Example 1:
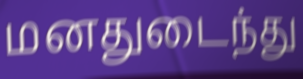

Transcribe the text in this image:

மனதுடைந்து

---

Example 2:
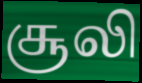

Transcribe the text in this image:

சூலி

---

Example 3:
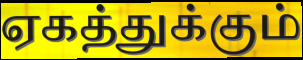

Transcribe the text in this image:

ஏகத்துக்கும்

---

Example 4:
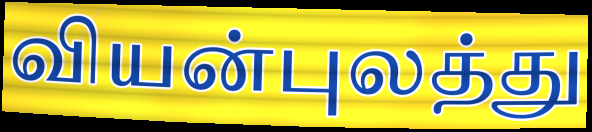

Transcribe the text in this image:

வியன்புலத்து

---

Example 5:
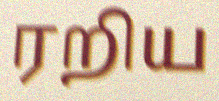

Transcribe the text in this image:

ரறிய